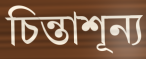
চিন্তাশূন্য